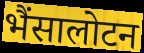
भैंसालोटन